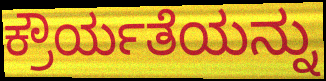
ಕ್ರೌರ್ಯತೆಯನ್ನು